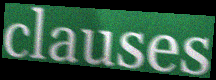
clauses